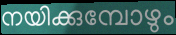
നയിക്കുമ്പോഴും